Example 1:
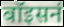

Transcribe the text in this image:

बॉइसनं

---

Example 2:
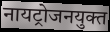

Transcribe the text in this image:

नायट्रोजनयुक्त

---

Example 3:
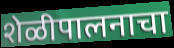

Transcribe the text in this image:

शेळीपालनाचा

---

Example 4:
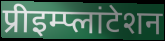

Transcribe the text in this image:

प्रीइम्प्लांटेशन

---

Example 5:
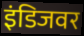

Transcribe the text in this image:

इंडिजवर